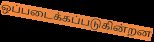
ஒப்படைக்கப்படுகின்றன